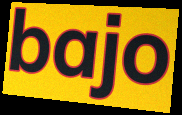
bajo